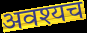
अवश्यच